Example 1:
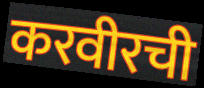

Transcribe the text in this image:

करवीरची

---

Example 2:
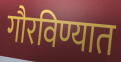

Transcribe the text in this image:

गौरविण्यात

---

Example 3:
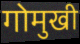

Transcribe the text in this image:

गोमुखी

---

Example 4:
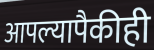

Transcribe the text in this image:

आपल्यापैकीही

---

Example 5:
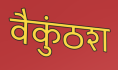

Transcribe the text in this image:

वैकुंठश